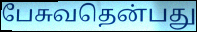
பேசுவதென்பது